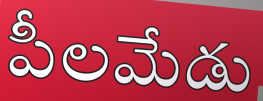
పీలమేడు